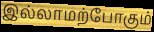
இல்லாமற்போகும்